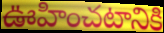
ఊహించటానికి